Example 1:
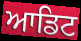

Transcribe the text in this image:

ਆਡਿਟ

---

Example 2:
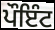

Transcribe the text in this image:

ਪੌਇੰਟ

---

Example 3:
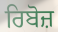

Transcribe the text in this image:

ਰਿਬੋਜ਼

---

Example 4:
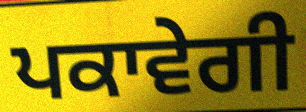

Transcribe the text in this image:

ਪਕਾਵੇਗੀ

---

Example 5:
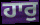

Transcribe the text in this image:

ਹਾਰੁ